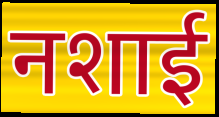
नशाई